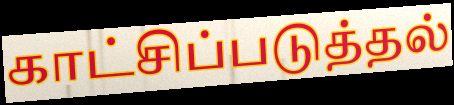
காட்சிப்படுத்தல்